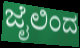
ಜೈಲಿಂದ